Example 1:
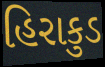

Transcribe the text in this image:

હિરાકુડ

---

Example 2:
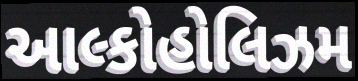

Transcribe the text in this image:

આલ્કોહોલિઝમ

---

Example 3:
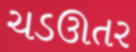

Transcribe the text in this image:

ચડઊતર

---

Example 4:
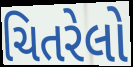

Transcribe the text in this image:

ચિતરેલો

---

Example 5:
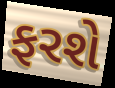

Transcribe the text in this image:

ફરશે